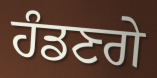
ਹੰਡਣਗੇ